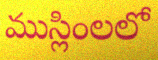
ముస్లింలలో